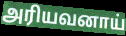
அரியவனாய்